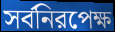
সর্বনিরপেক্ষ